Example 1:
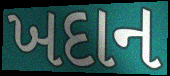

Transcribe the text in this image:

ખદાન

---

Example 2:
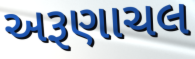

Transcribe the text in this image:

અરૂણાચલ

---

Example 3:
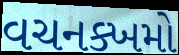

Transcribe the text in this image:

વચનક્ખમો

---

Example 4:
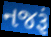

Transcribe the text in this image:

નજરૂં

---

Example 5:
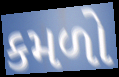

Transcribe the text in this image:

કમળો